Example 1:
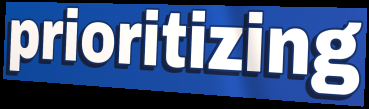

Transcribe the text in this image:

prioritizing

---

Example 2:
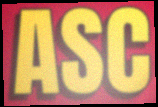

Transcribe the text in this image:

ASC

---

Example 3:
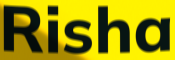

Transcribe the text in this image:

Risha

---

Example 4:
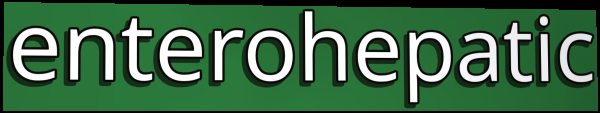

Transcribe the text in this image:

enterohepatic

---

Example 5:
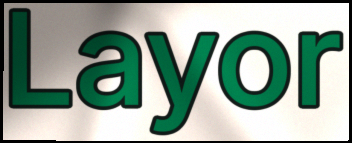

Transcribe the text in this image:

Layor